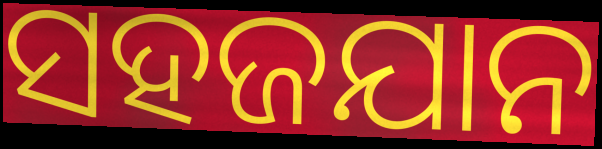
ସହଜଯାନ